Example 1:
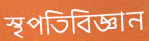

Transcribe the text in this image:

স্থপতিবিজ্ঞান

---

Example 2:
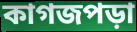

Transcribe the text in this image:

কাগজপড়া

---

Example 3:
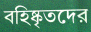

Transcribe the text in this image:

বহিষ্কৃতদের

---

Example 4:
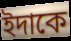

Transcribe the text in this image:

ইদাকে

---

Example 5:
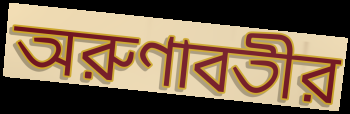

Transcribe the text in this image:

অরুণাবতীর